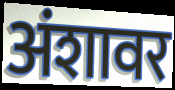
अंशावर